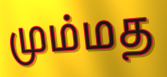
மும்மத